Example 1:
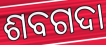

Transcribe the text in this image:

ଶବଗଦା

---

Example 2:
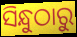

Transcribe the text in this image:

ସିନ୍ଧୁଠାରୁ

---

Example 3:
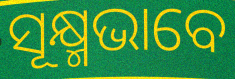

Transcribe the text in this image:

ସୂକ୍ଷ୍ମଭାବେ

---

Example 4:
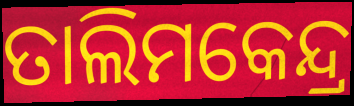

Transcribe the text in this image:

ତାଲିମକେନ୍ଦ୍ର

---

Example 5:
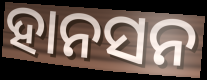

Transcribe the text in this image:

ହାନସନ